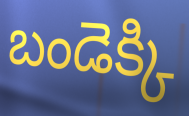
బండెక్కి